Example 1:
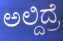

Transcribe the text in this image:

ಅಲ್ದಿದ್ರೆ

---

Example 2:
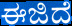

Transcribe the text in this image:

ಈಜಿದೆ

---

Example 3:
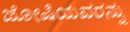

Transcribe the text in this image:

ಜೋಷಿಯವರನ್ನು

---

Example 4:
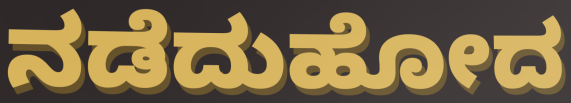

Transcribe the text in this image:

ನಡೆದುಹೋದ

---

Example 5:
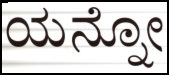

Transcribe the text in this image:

ಯನ್ನೋ